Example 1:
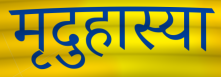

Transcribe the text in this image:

मृदुहास्या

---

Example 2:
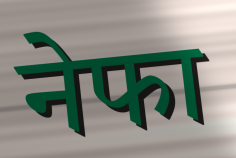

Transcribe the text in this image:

नेफा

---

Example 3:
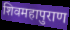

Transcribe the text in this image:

शिवमहापुराण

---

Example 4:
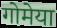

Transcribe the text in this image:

गोमेया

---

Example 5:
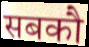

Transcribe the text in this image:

सबकौ